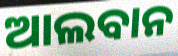
ଆଲବାନ